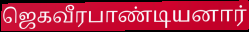
ஜெகவீரபாண்டியனார்